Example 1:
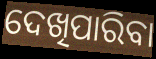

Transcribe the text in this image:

ଦେଖିପାରିବା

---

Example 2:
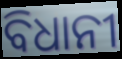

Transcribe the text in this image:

ବିଧାନୀ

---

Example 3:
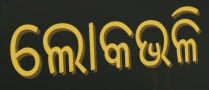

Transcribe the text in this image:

ଲୋକଭଳି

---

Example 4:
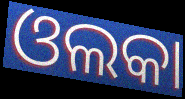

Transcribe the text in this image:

ଓଲକା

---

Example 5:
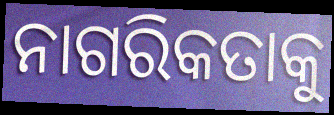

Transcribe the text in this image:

ନାଗରିକତାକୁ